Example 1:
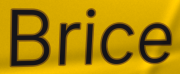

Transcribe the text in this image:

Brice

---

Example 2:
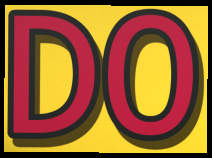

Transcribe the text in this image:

DO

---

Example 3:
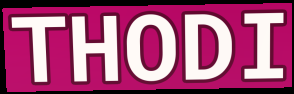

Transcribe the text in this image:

THODI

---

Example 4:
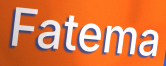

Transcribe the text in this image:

Fatema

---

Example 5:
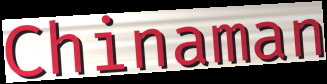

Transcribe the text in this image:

Chinaman